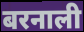
बरनाली